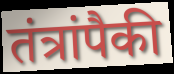
तंत्रांपैकी